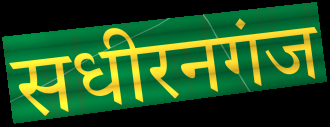
सधीरनगंज